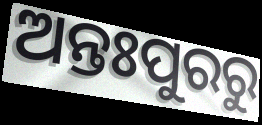
ଅନ୍ତଃପୁରରୁ